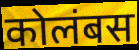
कोलंबस